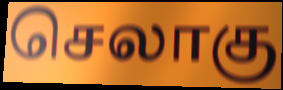
செலாகு